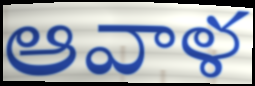
ఆవాళ